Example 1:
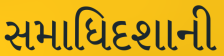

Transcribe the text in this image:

સમાધિદશાની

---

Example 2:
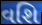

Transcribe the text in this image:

વશિ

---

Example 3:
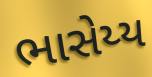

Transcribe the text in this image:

ભાસેય્ય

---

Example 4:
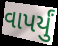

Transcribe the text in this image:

વાપર્યું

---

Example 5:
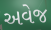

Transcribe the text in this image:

અવેજ